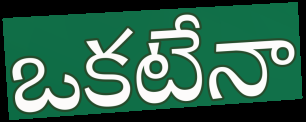
ఒకటేనా